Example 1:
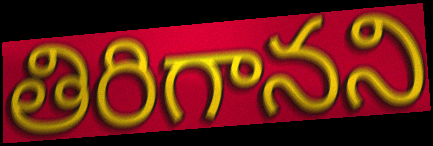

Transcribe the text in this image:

తిరిగానని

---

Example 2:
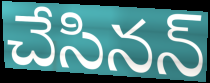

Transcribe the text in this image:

చేసినన్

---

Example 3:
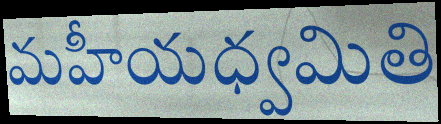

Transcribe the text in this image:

మహీయధ్వమితి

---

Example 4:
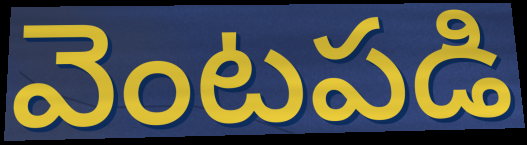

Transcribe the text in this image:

వెంటపడి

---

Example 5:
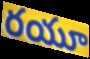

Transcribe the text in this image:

రయూ